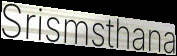
Srismsthana